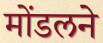
मोंडलने